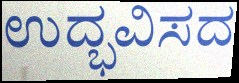
ಉದ್ಭವಿಸದ